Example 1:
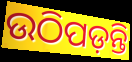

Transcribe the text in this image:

ଉଠିପଡ଼ନ୍ତି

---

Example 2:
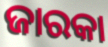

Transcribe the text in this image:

ଜାରକା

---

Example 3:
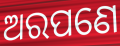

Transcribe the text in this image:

ଅରପଣେ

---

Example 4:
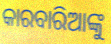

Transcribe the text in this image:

କାରବାରିଆଙ୍କୁ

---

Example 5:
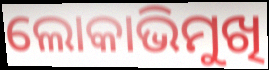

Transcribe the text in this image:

ଲୋକାଭିମୁଖି